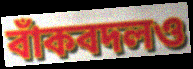
বাঁকবদলও